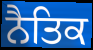
ਨੈਤਿਕ